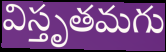
విస్తృతమగు